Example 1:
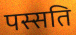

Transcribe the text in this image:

पस्सति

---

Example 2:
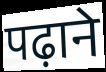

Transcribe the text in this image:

पढ़ाने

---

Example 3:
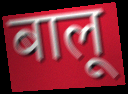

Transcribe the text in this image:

बालू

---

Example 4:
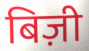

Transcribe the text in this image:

बिज़ी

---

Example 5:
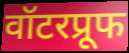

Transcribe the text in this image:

वॉटरप्रूफ